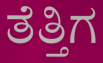
ತೆತ್ತಿಗ